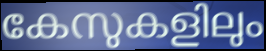
കേസുകളിലും